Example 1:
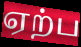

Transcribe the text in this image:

ஏற்ப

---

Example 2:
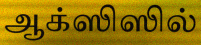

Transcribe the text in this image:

ஆக்ஸிஸில்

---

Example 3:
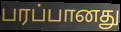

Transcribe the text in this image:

பரப்பானது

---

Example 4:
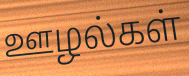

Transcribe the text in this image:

ஊழல்கள்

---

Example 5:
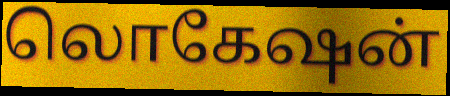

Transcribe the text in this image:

லொகேஷன்